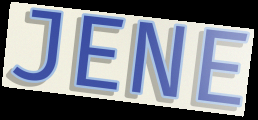
JENE